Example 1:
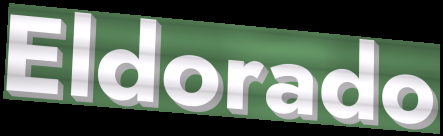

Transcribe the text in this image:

Eldorado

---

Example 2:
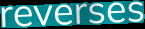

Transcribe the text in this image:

reverses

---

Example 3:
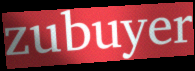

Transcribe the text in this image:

zubuyer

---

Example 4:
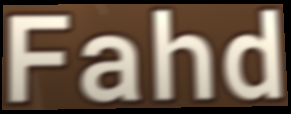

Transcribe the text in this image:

Fahd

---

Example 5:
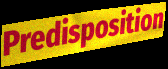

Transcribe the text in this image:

Predisposition